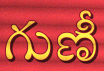
గుణీ